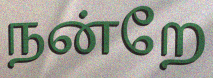
நன்றே